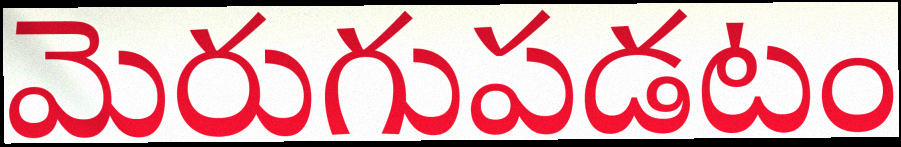
మెరుగుపడటం